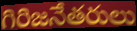
గిరిజనేతరులు